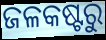
ଜଳକଷ୍ଟରୁ